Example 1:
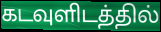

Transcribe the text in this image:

கடவுளிடத்தில்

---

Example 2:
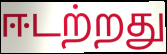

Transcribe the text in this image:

ஈடற்றது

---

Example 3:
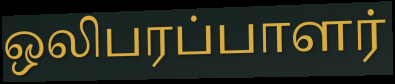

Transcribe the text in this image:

ஒலிபரப்பாளர்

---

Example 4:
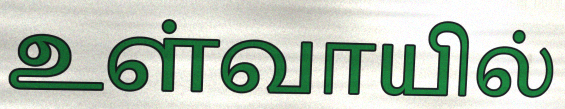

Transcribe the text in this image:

உள்வாயில்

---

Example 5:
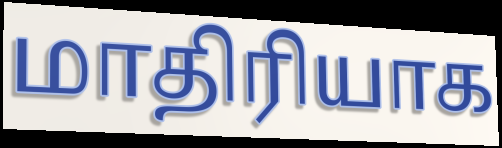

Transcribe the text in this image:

மாதிரியாக